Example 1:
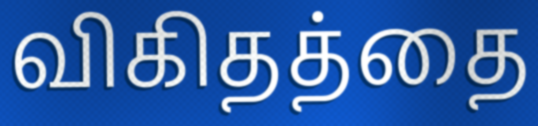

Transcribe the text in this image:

விகிதத்தை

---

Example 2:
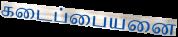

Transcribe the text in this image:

கடைப்பையனை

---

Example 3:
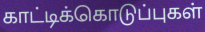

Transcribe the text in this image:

காட்டிக்கொடுப்புகள்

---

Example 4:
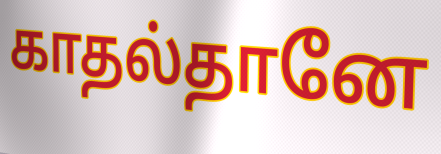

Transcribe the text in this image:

காதல்தானே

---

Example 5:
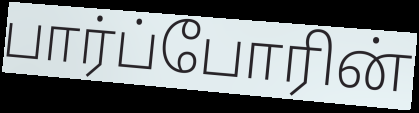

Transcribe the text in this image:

பார்ப்போரின்